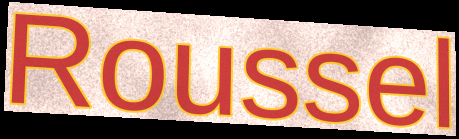
Roussel